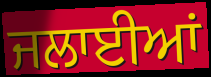
ਜਲਾਈਆਂ